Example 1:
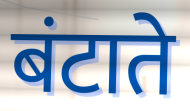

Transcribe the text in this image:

बंटाते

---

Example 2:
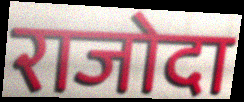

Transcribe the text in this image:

राजोदा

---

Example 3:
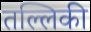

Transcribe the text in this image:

तल्लिकी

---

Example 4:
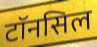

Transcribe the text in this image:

टॉनसिल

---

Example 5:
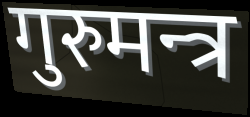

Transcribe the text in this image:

गुरुमन्त्र